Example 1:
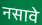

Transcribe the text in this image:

नसावे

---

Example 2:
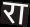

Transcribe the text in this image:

रा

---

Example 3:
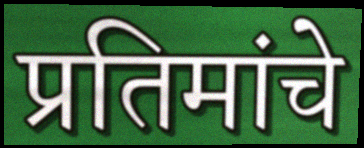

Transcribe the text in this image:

प्रतिमांचे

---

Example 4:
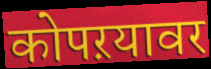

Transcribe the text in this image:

कोपऱयावर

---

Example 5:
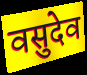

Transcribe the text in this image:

वसुदेव